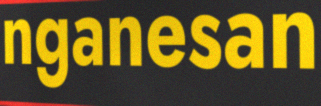
nganesan